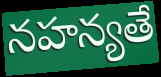
నహన్యతే